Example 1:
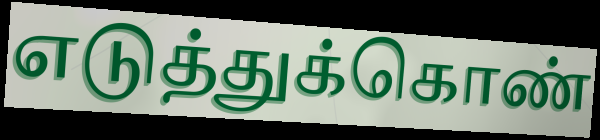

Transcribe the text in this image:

எடுத்துக்கொண்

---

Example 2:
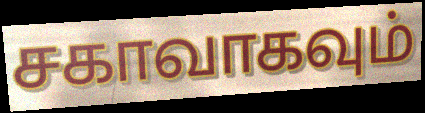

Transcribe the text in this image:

சகாவாகவும்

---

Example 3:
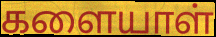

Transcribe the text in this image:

களையாள்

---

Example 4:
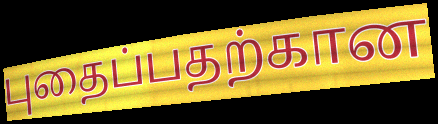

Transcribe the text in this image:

புதைப்பதற்கான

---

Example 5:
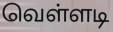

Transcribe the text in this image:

வெள்ளடி